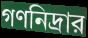
গণনিদ্রার